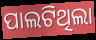
ପାଲଟିଥିଲା